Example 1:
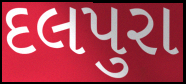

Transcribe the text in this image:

દલપુરા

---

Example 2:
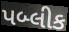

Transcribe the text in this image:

પબ્લીક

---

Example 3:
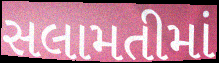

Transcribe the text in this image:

સલામતીમાં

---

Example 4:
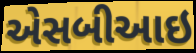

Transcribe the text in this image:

એસબીઆઇ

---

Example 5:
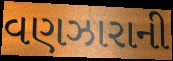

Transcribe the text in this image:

વણઝારાની